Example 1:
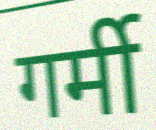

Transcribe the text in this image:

गर्मी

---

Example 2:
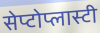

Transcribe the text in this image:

सेप्टोप्लास्टी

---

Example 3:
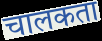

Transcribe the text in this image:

चालकता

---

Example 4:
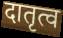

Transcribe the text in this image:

दातृत्व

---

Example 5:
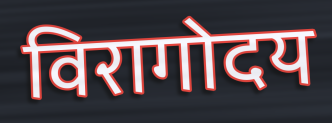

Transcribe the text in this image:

विरागोदय